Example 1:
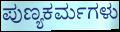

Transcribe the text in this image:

ಪುಣ್ಯಕರ್ಮಗಳು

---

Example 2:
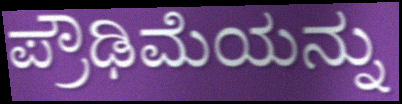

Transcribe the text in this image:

ಪ್ರೌಢಿಮೆಯನ್ನು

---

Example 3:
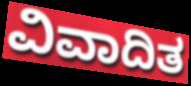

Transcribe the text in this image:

ವಿವಾದಿತ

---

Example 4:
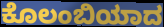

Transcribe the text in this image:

ಕೊಲಂಬಿಯಾದ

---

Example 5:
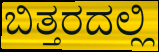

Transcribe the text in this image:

ಬಿತ್ತರದಲ್ಲಿ